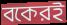
বকেরই